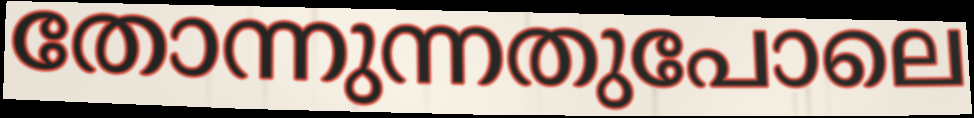
തോന്നുന്നതുപോലെ